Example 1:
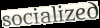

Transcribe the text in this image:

socialized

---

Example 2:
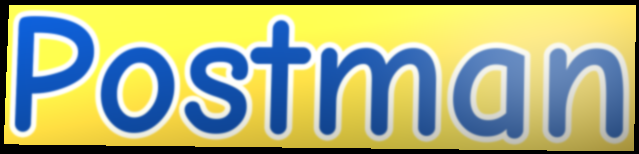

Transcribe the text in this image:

Postman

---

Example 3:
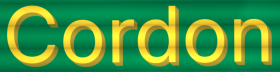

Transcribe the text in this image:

Cordon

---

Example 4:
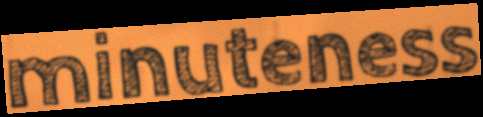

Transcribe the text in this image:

minuteness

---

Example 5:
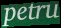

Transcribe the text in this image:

petru